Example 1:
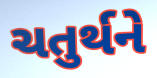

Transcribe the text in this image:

ચતુર્થને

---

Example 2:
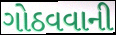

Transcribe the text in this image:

ગોઠવવાની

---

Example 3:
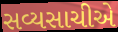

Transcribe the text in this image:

સવ્યસાચીએ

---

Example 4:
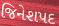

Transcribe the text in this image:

જિનેશપદ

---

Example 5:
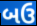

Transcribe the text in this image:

બઉ